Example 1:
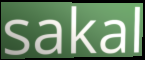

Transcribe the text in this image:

sakal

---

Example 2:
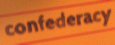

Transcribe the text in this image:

confederacy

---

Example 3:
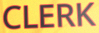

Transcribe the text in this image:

CLERK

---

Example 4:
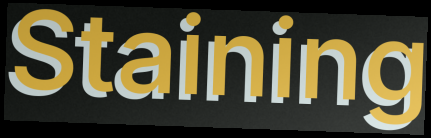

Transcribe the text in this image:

Staining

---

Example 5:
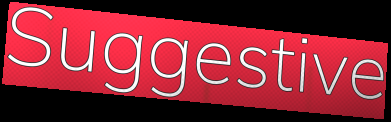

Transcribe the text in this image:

Suggestive